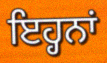
ਇਹ੍ਹਨਾਂ